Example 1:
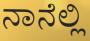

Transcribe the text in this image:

ನಾನೆಲ್ಲಿ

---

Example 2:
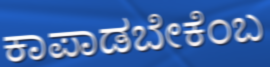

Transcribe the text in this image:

ಕಾಪಾಡಬೇಕೆಂಬ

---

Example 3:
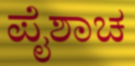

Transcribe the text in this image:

ಪೈಶಾಚ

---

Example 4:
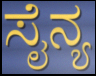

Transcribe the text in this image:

ಸೈನ್ಯ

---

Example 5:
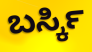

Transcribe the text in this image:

ಬರ್ಸ್ಕಿ